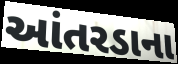
આંતરડાના